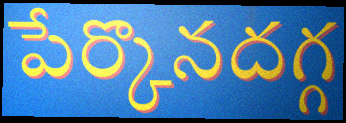
పేర్కొనదగ్గ